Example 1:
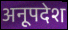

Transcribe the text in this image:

अनूपदेश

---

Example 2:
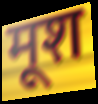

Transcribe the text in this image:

मूश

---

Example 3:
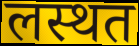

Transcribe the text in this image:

लस्थत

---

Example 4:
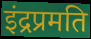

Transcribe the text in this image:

इंद्रप्रमति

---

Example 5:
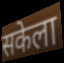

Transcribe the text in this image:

सकेला